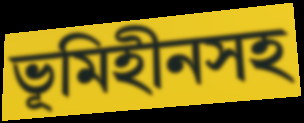
ভূমিহীনসহ